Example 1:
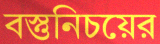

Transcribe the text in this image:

বস্তুনিচয়ের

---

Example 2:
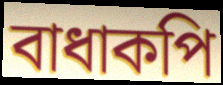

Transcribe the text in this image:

বাধাকপি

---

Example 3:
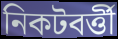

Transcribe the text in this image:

নিকটবর্ত্তী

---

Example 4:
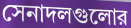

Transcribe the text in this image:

সেনাদলগুলোর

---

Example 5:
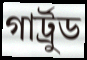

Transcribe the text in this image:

গার্ট্রুড